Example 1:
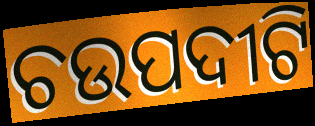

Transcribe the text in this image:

ଚଉପଦୀଟି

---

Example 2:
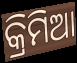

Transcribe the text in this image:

କ୍ରିମିଆ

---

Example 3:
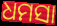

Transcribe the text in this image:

ଧମସା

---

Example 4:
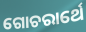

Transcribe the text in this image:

ଗୋଚରାର୍ଥେ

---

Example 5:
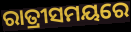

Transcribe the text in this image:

ରାତ୍ରୀସମୟରେ